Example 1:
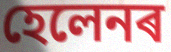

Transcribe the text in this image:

হেলেনৰ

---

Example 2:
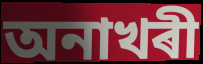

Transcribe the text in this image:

অনাখৰী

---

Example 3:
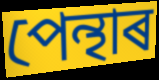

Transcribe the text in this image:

পেন্থাৰ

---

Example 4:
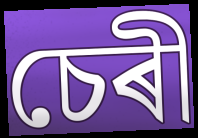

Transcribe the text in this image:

চেৰী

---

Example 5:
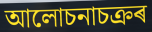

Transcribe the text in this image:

আলোচনাচক্ৰৰ